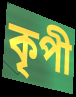
কৃপী